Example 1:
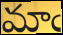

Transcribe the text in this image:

మాఁ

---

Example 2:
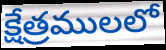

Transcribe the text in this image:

క్షేత్రములలో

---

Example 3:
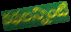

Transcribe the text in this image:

కథలన్నింటి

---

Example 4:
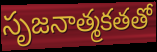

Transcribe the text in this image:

సృజనాత్మకతతో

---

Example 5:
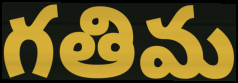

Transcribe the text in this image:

గతిమ